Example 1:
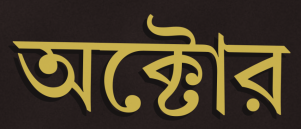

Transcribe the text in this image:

অক্টোর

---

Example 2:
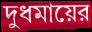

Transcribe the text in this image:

দুধমায়ের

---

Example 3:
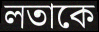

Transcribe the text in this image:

লতাকে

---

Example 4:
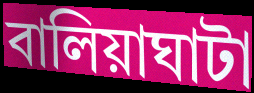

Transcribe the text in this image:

বালিয়াঘাটা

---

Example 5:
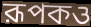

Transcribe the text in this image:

রূপকও